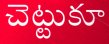
చెట్టుకూ